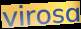
virosa